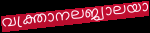
വക്ത്രാനലജ്വാലയാ